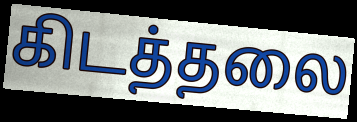
கிடத்தலை